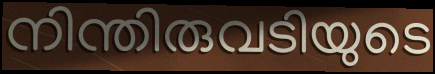
നിന്തിരുവടിയുടെ